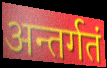
अन्तर्गतं